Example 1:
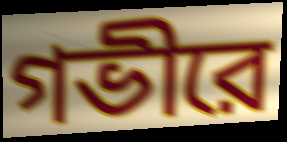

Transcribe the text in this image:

গভীরে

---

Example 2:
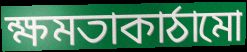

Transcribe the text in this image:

ক্ষমতাকাঠামো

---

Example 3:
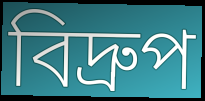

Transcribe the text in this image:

বিদ্রুপ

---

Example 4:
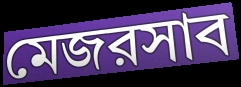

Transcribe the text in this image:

মেজরসাব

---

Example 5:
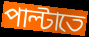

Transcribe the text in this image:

পাল্টাতে